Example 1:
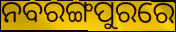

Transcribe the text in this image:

ନବରଙ୍ଗପୁରରେ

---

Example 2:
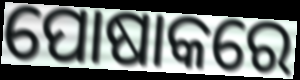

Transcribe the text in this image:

ପୋଷାକରେ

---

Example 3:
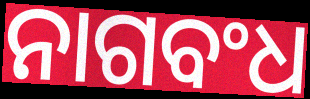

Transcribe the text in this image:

ନାଗବଂଧ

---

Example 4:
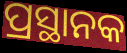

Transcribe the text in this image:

ପ୍ରସ୍ଥାନକ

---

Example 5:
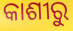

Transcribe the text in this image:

କାଶୀରୁ